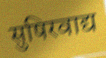
सुषिरवाद्य